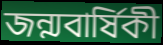
জন্মবার্ষিকী